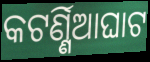
କଟର୍ଣ୍ଣିଆଘାଟ